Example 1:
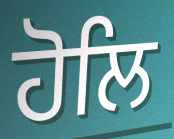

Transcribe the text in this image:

ਹੋਲਿ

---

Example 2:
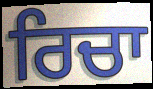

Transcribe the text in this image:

ਰਿਚਾ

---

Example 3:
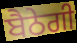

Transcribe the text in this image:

ਬੈਠੇਗੀ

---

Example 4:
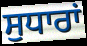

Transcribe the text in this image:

ਸੁਧਾਰਾਂ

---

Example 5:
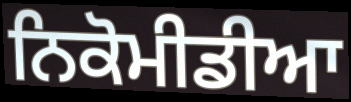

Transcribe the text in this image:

ਨਿਕੋਮੀਡੀਆ